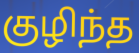
குழிந்த